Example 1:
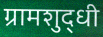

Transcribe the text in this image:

ग्रामशुद्धी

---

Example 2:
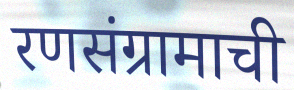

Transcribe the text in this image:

रणसंग्रामाची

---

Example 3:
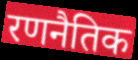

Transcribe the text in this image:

रणनैतिक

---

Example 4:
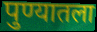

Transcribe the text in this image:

पुण्यातला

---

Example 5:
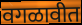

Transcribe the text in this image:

वगळावीत